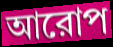
আরোপ